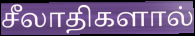
சீலாதிகளால்